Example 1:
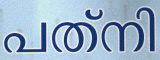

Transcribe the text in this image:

പത്‌നി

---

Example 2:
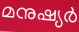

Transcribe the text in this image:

മനുഷ്യർ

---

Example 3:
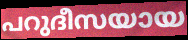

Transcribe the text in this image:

പറുദീസയായ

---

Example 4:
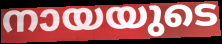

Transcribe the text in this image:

നായയുടെ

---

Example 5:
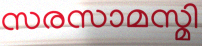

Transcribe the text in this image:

സരസാമസ്മി